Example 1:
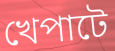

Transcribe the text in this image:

খেপাটে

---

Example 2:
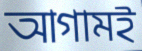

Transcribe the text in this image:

আগামই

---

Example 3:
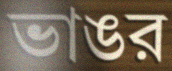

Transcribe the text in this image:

ভাঙর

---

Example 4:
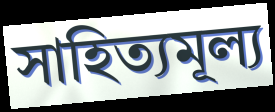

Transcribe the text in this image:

সাহিত্যমূল্য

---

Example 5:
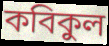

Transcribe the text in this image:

কবিকুল